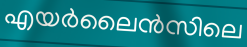
എയർലൈൻസിലെ